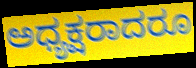
ಅಧ್ಯಕ್ಷರಾದರೂ